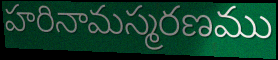
హరినామస్మరణము